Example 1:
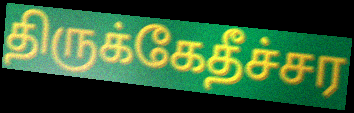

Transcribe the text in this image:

திருக்கேதீச்சர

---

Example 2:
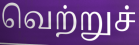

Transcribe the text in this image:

வெற்றுச்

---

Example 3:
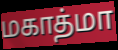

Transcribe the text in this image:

மகாத்மா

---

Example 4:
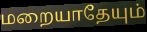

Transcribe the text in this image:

மறையாதேயும்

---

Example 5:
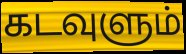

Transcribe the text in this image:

கடவுளும்